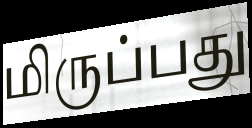
மிருப்பது